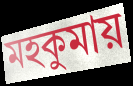
মহকুমায়